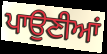
ਪਾਉਣੀਆਂ